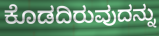
ಕೊಡದಿರುವುದನ್ನು